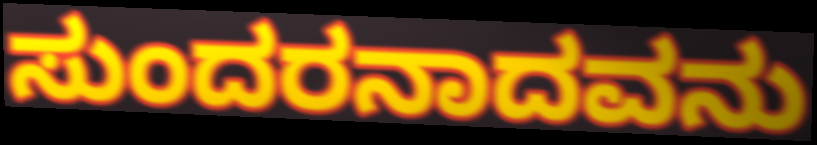
ಸುಂದರನಾದವನು